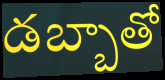
డబ్బాతో